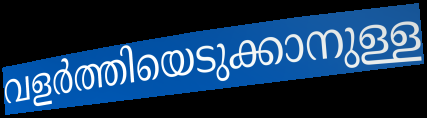
വളർത്തിയെടുക്കാനുള്ള